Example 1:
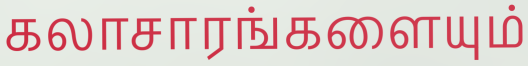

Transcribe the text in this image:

கலாசாரங்களையும்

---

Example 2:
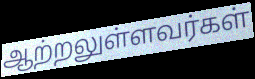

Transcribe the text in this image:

ஆற்றலுள்ளவர்கள்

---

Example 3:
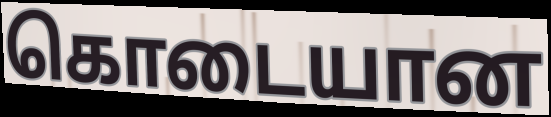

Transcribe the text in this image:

கொடையான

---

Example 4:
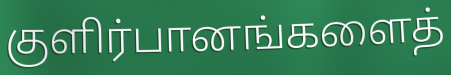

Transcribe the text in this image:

குளிர்பானங்களைத்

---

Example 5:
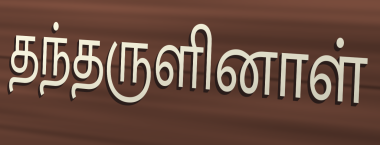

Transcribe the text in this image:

தந்தருளினாள்